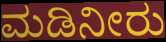
ಮಡಿನೀರು